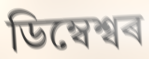
ডিম্বেশ্বৰ